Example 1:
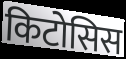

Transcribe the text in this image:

किटोसिस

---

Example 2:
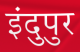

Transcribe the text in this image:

इंदुपुर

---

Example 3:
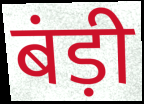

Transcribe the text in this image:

बंड़ी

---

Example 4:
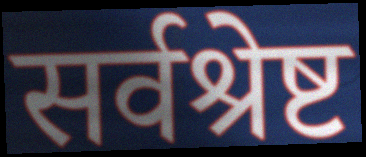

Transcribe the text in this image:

सर्वश्रेष्ट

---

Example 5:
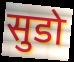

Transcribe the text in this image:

सुडो